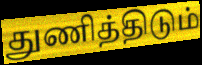
துணித்திடும்